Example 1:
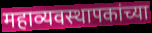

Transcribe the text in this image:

महाव्यवस्थापकांच्या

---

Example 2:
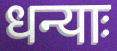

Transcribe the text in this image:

धन्याः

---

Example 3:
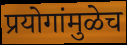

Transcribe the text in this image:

प्रयोगांमुळेच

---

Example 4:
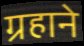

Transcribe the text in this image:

ग्रहाने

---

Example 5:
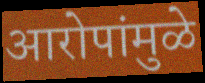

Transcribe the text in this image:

आरोपांमुळे